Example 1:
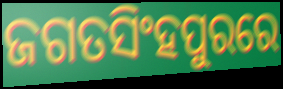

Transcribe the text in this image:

ଜଗତସିଂହପୁରରେ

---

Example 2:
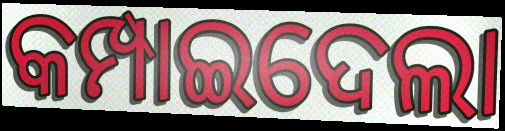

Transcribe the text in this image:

କମ୍ପାଇଦେଲା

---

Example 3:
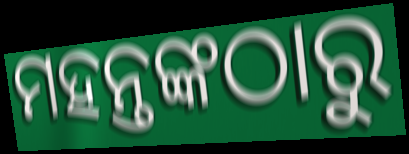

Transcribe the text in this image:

ମହନ୍ତଙ୍କଠାରୁ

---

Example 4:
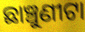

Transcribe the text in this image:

ଛାଞ୍ଚୁଣୀଟା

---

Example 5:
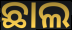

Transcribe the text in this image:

ଛାଲ